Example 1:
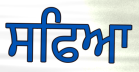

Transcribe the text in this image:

ਸਫਿਆ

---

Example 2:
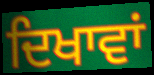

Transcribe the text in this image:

ਦਿਖਾਵਾਂ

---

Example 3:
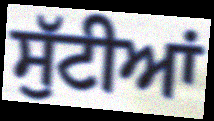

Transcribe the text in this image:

ਸੁੱਟੀਆਂ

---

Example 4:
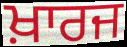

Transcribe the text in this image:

ਖ਼ਾਰਜ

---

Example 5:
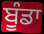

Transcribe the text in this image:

ਬੂੰਡਾ